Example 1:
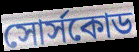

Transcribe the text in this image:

সোর্সকোড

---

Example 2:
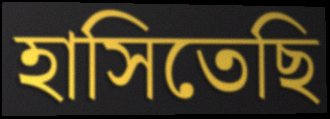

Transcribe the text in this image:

হাসিতেছি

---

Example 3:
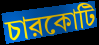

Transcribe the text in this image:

চারকোটি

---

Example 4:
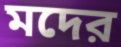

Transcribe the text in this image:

মদের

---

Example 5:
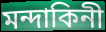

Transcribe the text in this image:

মন্দাকিনী